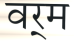
वर्म